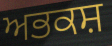
ਅਭਕਸ਼